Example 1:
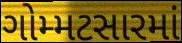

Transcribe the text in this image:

ગોમ્મટસારમાં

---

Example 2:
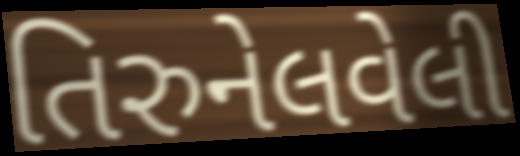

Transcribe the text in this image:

તિરુનેલવેલી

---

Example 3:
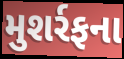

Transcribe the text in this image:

મુશર્રફના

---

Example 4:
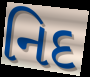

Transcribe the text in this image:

નિદ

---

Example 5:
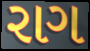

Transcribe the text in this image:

રાગ